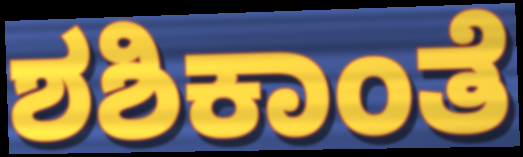
ಶಶಿಕಾಂತೆ